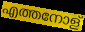
എത്തനോള്